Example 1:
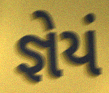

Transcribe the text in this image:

જ્ઞેયં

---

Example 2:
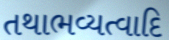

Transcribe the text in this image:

તથાભવ્યત્વાદિ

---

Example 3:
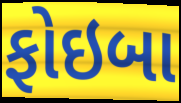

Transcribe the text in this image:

ફોઇબા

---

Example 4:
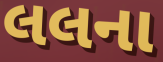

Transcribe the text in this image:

લલના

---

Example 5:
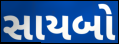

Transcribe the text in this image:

સાયબો